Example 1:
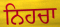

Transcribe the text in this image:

ਨਿਹਚਾ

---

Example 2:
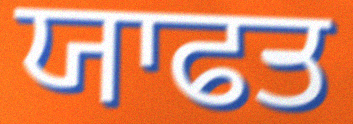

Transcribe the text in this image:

ਯਾਫਤ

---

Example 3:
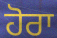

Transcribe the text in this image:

ਹੋਰਾ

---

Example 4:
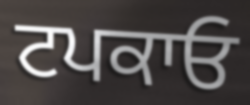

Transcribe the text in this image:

ਟਪਕਾਓ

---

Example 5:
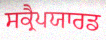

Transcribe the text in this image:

ਸਕ੍ਰੈਪਯਾਰਡ